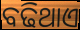
ବଢିଥାଏ